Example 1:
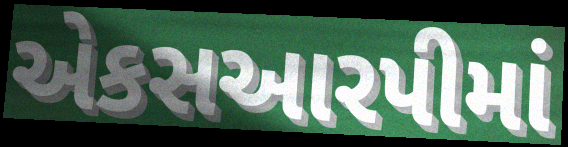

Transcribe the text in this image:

એકસઆરપીમાં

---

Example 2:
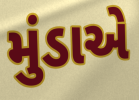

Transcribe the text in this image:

મુંડાએ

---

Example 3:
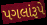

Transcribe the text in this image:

પગલાંરૂપે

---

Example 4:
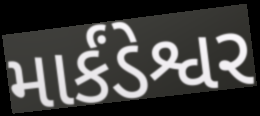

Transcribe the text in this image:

માર્કંડેશ્વર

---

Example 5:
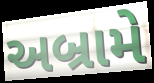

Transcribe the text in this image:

અબ્રામે